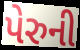
પેરુની